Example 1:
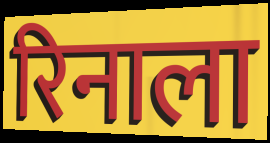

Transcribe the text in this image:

रिनाला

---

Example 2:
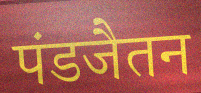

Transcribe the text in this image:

पंडजैतन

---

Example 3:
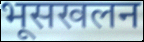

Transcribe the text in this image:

भूसखलन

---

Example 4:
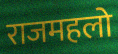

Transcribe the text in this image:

राजमहलो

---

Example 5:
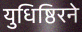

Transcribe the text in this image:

युधिष्ठिरने